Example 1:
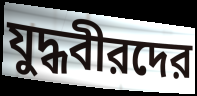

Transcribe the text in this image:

যুদ্ধবীরদের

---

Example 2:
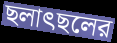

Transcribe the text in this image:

ছলাৎছলের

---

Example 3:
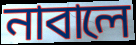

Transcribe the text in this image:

নাবালে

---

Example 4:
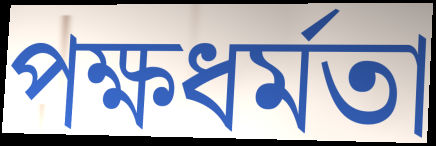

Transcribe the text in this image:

পক্ষধর্মতা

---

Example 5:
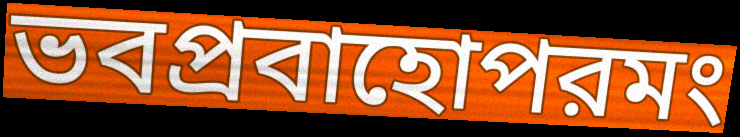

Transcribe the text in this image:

ভবপ্রবাহোপরমং